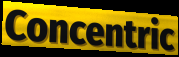
Concentric